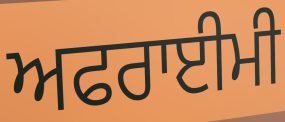
ਅਫਰਾਈਮੀ